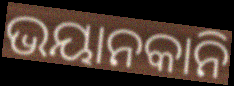
ଭୟାନକାନି